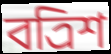
বত্ৰিশ